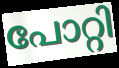
പോറ്റി